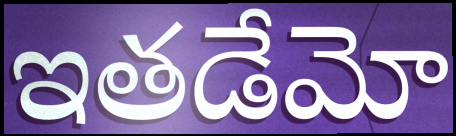
ఇతడేమో